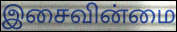
இசைவின்மை